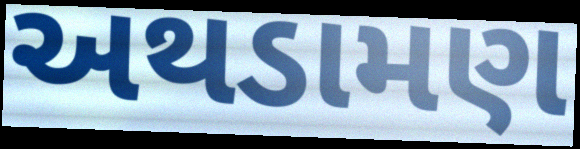
અથડામણ